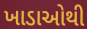
ખાડાઓથી